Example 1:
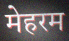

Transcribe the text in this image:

मेहरम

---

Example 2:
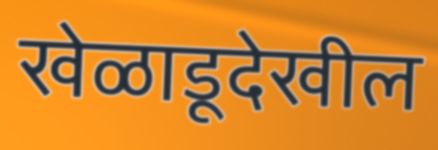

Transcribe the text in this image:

खेळाडूदेखील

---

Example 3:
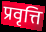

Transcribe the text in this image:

प्रवृत्ति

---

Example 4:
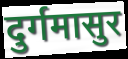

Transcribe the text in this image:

दुर्गमासुर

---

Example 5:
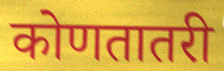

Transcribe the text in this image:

कोणतातरी